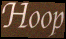
Hoop